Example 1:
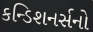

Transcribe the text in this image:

કન્ડિશનર્સનો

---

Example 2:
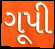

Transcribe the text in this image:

ગૂપી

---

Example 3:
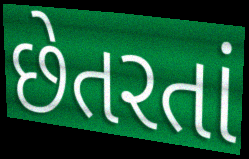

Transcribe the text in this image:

છેતરતાં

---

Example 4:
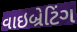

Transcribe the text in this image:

વાઇબ્રેટિંગ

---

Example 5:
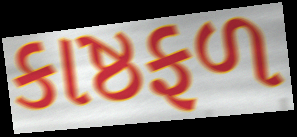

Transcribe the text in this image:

કાષ્ઠફળ